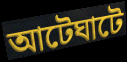
আটেঘাটে